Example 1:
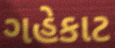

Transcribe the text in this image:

ગહેકાટ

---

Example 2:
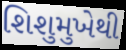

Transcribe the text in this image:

શિશુમુખેથી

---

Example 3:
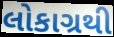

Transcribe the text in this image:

લોકાગ્રથી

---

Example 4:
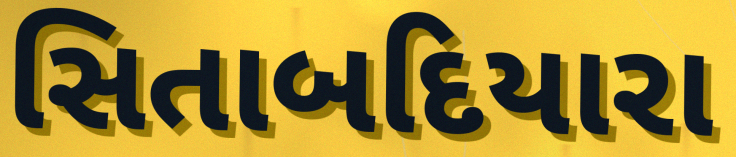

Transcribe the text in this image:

સિતાબદિયારા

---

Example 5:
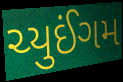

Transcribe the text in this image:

ચ્યુઈંગમ